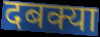
दबक्या